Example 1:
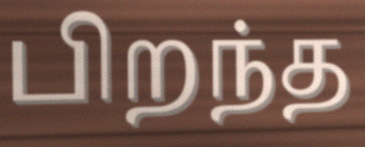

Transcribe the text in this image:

பிறந்த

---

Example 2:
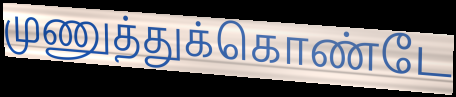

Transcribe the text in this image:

முணுத்துக்கொண்டே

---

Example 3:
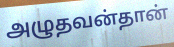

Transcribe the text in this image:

அழுதவன்தான்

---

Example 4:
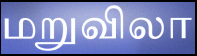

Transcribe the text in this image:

மறுவிலா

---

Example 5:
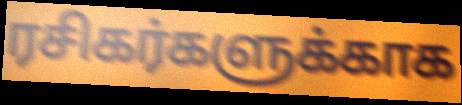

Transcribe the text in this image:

ரசிகர்களுக்காக